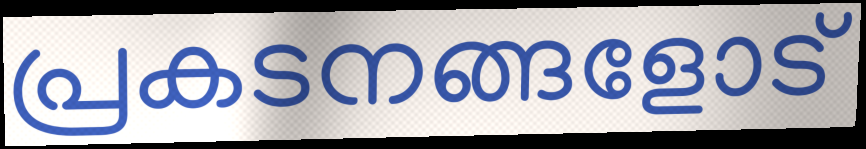
പ്രകടനങ്ങളോട്